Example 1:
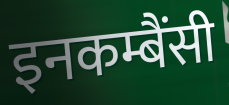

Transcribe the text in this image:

इनकम्बैंसी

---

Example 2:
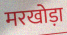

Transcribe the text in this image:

मरखोड़ा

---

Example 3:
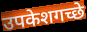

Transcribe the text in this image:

उपकेशगच्छे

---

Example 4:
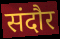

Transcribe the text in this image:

संदौर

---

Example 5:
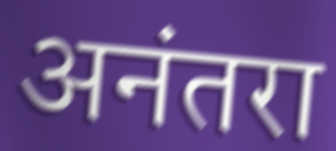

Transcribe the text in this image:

अनंतरा